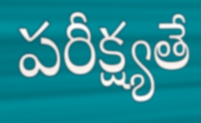
పరీక్ష్యతే